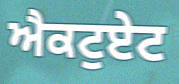
ਐਕਟੁਏਟ